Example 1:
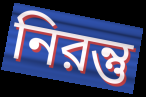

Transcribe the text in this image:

নিরন্তু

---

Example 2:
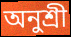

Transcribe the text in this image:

অনুশ্রী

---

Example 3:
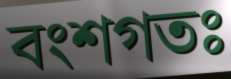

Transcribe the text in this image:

বংশগতঃ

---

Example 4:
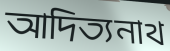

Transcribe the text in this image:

আদিত্যনাথ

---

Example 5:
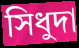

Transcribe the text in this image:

সিধুদা